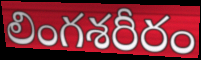
లింగశరీరం